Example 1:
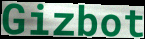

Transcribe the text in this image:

Gizbot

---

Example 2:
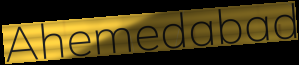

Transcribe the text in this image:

Ahemedabad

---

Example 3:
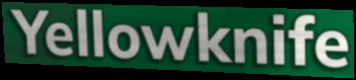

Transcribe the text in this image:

Yellowknife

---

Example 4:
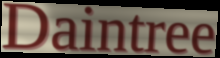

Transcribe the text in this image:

Daintree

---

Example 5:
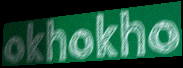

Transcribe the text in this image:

okhokho